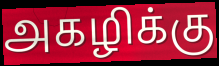
அகழிக்கு